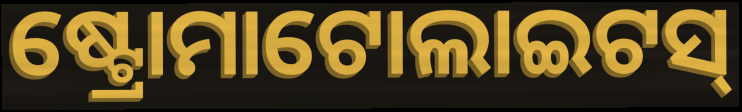
ଷ୍ଟ୍ରୋମାଟୋଲାଇଟସ୍